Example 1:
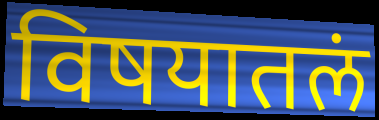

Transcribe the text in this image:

विषयातलं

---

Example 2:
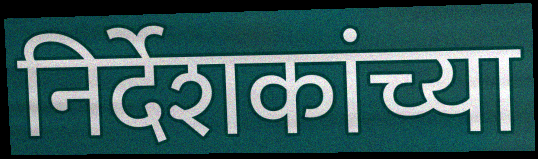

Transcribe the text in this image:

निर्देशकांच्या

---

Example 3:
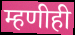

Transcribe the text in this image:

म्हणीही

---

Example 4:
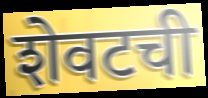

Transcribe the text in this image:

शेवटची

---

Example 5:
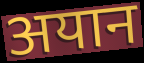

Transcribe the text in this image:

अयान